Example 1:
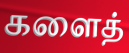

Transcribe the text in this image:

களைத்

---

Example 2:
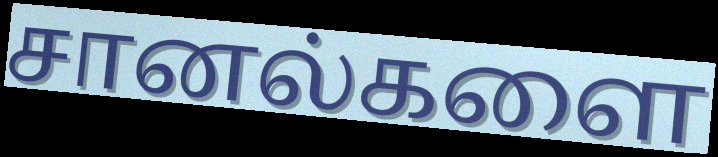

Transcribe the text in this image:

சானல்களை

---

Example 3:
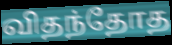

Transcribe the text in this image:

விதந்தோத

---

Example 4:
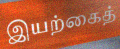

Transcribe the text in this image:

இயற்கைத்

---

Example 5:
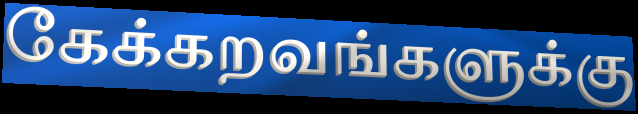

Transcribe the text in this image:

கேக்கறவங்களுக்கு